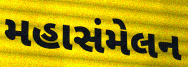
મહાસંમેલન